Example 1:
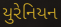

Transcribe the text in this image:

યુરેનિયન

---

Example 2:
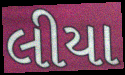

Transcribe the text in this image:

લીયા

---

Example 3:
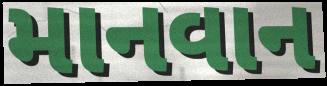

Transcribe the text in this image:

માનવાન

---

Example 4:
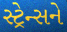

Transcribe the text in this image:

સ્ટ્રેન્સને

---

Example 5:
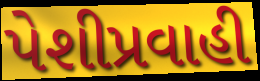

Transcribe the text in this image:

પેશીપ્રવાહી